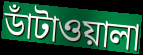
ডাঁটাওয়ালা